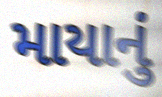
માયાનું